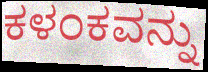
ಕಳಂಕವನ್ನು